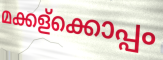
മക്കള്ക്കൊപ്പം